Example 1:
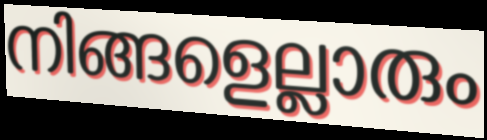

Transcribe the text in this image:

നിങ്ങളെല്ലാരും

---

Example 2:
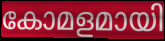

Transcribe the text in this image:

കോമളമായി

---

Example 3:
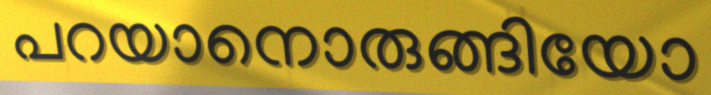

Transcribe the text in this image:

പറയാനൊരുങ്ങിയോ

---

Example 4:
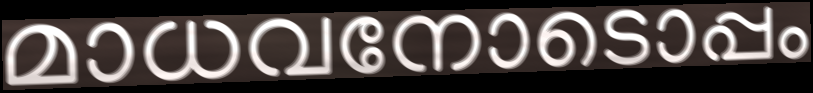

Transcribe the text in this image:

മാധവനോടൊപ്പം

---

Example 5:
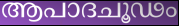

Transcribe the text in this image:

ആപാദചൂഢം